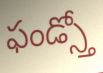
ఫండ్స్తో